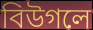
বিউগলে